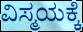
ವಿಸ್ಮಯಕ್ಕೆ